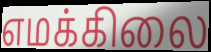
எமக்கிலை